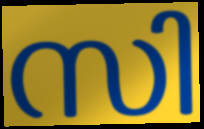
സി